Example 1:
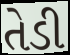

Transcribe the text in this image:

તેડી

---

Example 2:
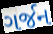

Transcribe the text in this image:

ગર્જન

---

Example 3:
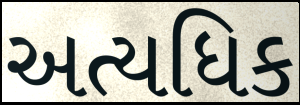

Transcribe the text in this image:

અત્યધિક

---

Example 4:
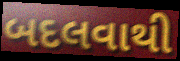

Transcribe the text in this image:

બદલવાથી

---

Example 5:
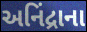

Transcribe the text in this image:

અનિંદ્રાના